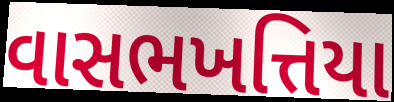
વાસભખત્તિયા